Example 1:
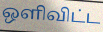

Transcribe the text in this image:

ஒளிவிட்ட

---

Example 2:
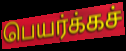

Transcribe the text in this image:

பெயர்க்கச்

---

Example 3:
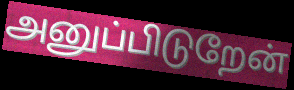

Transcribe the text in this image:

அனுப்பிடுறேன்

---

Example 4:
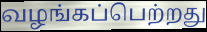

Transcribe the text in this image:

வழங்கப்பெற்றது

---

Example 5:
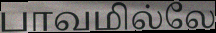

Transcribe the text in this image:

பாவமில்லே